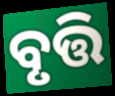
ବୃତ୍ତି